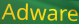
Adware